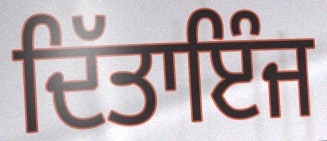
ਦਿੱਤਾਇੰਜ